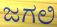
ಜಗಲಿ